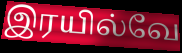
இரயில்வே